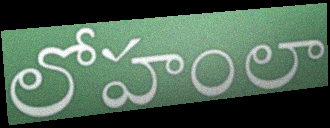
లోహంలా